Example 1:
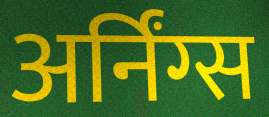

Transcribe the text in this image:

अर्निंग्स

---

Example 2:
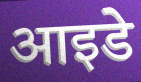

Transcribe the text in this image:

आइडे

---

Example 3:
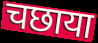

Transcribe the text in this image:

चछाया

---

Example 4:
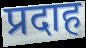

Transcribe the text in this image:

प्रदाह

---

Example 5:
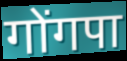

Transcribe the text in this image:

गोंगपा